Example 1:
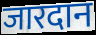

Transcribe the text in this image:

जारदान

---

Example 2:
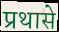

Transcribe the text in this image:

प्रथासे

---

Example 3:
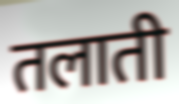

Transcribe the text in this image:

तलाती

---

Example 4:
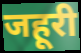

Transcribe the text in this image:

जहूरी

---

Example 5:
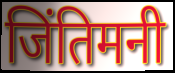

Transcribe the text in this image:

जिंतिमनी